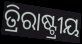
ତ୍ରିରାଷ୍ଟ୍ରୀୟ